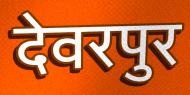
देवरपुर